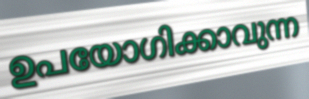
ഉപയോഗിക്കാവുന്ന